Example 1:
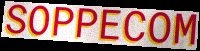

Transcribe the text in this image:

SOPPECOM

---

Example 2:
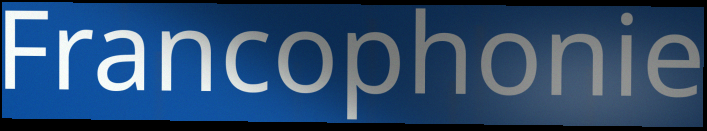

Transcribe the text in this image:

Francophonie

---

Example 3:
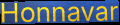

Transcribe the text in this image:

Honnavar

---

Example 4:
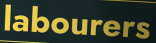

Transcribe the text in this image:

labourers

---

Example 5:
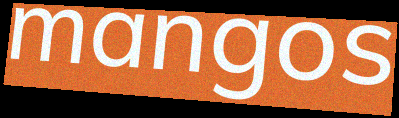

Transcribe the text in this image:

mangos